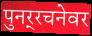
पुनर्रचनेवर